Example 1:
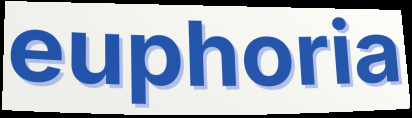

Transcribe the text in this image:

euphoria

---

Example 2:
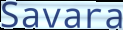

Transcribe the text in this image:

Savara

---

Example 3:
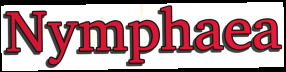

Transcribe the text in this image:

Nymphaea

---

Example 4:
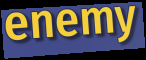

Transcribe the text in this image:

enemy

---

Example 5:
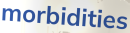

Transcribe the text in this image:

morbidities